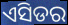
ଏସିଡର